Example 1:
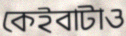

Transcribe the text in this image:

কেইবাটাও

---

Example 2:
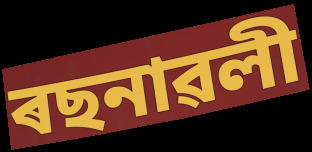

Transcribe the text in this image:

ৰছনাৱলী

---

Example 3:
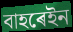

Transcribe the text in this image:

বাহৰেইন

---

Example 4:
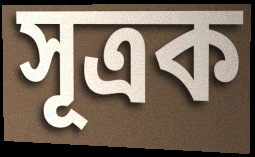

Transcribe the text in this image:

সূত্ৰক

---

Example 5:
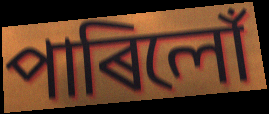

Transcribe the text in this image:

পাৰিলোঁ